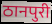
ठानपुरी